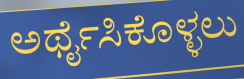
ಅರ್ಥೈಸಿಕೊಳ್ಳಲು